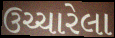
ઉચ્ચારેલા